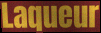
Laqueur